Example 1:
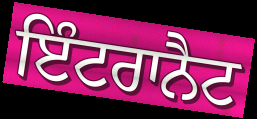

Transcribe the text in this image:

ਇੰਟਰਾਨੈਟ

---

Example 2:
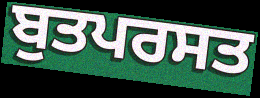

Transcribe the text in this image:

ਬੁਤਪਰਸਤ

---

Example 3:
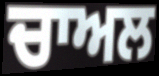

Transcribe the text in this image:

ਚਾਅਲ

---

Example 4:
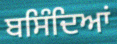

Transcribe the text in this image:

ਬਸਿੰਦਿਆਂ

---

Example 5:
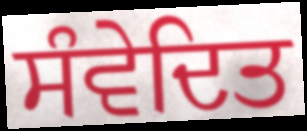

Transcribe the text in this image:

ਸੰਵੇਦਿਤ